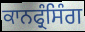
ਕਾਨਫ੍ਰੰਸਿੰਗ